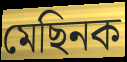
মেছিনক